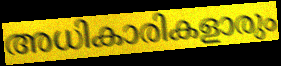
അധികാരികളാരും